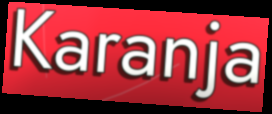
Karanja